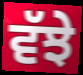
ਵੱਝੇ